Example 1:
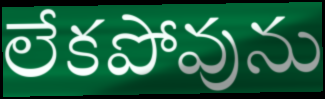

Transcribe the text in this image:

లేకపోవును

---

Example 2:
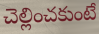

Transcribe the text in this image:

చెల్లించకుంటే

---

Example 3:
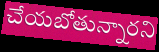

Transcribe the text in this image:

చేయబోతున్నారని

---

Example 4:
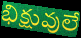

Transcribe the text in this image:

భిక్షువులే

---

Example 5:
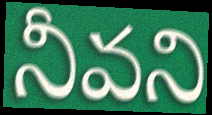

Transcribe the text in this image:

నీవని